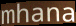
mhana